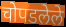
चोपडलेले